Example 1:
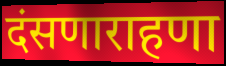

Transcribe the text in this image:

दंसणाराहणा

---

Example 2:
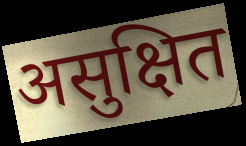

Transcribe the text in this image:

असुक्षित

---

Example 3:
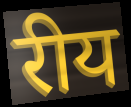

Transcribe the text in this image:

रीय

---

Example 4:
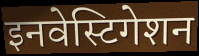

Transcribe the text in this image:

इनवेस्टिगेशन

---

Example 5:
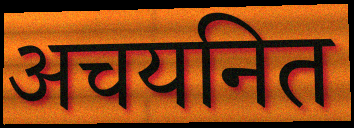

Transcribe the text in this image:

अचयनित